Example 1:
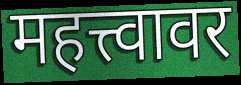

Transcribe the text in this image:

महत्त्वावर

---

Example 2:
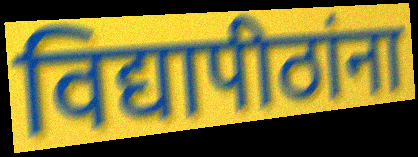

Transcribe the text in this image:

विद्यापीठांना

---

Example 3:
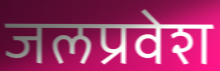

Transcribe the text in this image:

जलप्रवेश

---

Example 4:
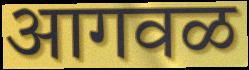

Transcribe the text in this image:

आगवळ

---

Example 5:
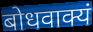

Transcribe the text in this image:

बोधवाक्यं